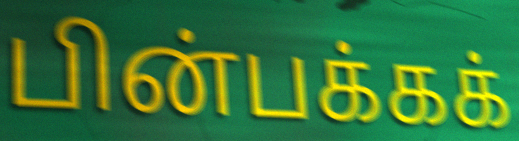
பின்பக்கக்